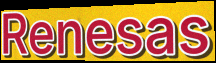
Renesas